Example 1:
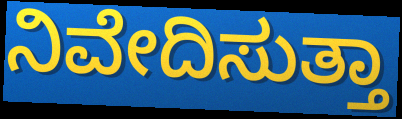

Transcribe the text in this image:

ನಿವೇದಿಸುತ್ತಾ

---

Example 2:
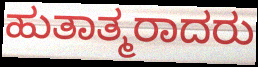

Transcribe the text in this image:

ಹುತಾತ್ಮರಾದರು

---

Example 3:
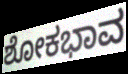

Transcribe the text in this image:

ಶೋಕಭಾವ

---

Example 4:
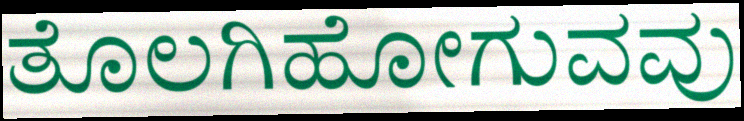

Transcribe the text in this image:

ತೊಲಗಿಹೋಗುವವು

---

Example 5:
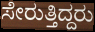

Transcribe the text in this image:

ಸೇರುತ್ತಿದ್ದರು